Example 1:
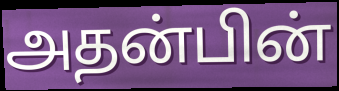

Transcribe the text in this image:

அதன்பின்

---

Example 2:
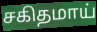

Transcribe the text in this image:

சகிதமாய்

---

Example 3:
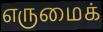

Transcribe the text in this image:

எருமைக்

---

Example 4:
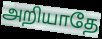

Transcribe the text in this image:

அறியாதே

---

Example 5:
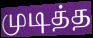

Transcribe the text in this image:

முடித்த